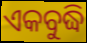
ଏକବୁଦ୍ଧି